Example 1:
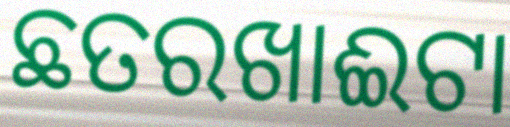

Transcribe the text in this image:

ଛତରଖାଈଟା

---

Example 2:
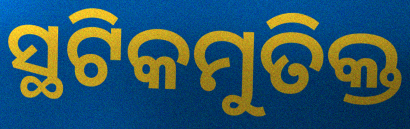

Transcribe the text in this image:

ସ୍ଥଟିକମୁତିକ୍ତ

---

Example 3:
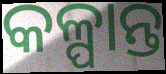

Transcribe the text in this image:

କଳ୍ପାନ୍ତ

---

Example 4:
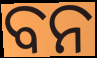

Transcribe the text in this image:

ବନ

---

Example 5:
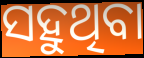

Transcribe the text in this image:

ସହୁଥିବା